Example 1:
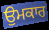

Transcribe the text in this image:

ਉਮਕਾਰ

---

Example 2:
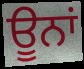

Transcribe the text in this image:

ਊਨਾਂ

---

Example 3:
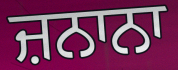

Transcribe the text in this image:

ਜ਼ਨਾਨਾ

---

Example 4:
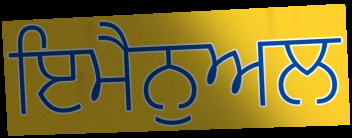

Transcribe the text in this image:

ਇਮੈਨੁਅਲ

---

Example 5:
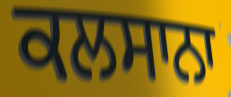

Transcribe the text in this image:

ਕਲਸਾਨਾ